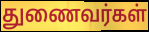
துணைவர்கள்